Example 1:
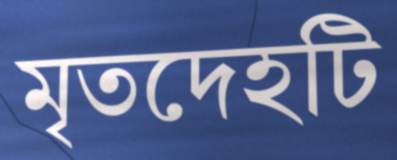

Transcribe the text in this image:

মৃতদেহটি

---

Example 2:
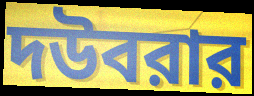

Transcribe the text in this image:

দউবরার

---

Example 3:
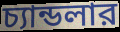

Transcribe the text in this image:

চ্যান্ডলার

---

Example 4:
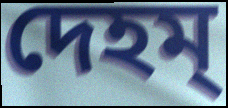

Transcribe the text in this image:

দেহম্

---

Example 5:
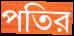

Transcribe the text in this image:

পতির